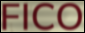
FICO